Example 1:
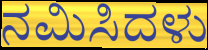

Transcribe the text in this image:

ನಮಿಸಿದಳು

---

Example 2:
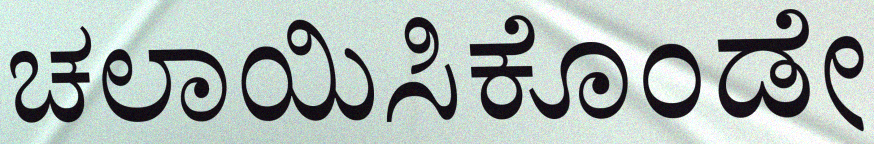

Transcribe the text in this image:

ಚಲಾಯಿಸಿಕೊಂಡೇ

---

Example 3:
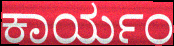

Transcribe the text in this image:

ಕಾರ್ಯಂ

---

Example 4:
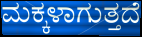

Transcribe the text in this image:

ಮಕ್ಕಳಾಗುತ್ತದೆ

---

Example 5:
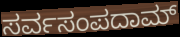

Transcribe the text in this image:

ಸರ್ವಸಂಪದಾಮ್